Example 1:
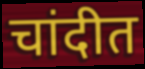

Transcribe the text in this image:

चांदीत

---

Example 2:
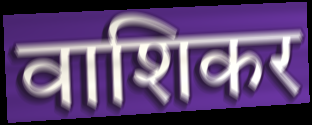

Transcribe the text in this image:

वाशिकर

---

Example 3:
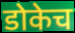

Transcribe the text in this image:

डोकेच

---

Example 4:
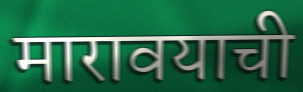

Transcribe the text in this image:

मारावयाची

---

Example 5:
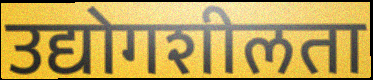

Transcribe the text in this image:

उद्योगशीलता